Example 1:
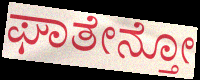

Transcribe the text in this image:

ಘಾತೇನ್ತೋ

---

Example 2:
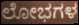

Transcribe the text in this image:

ಲೋಭಗಳ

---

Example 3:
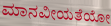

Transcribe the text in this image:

ಮಾನವೀಯತೆಯೋ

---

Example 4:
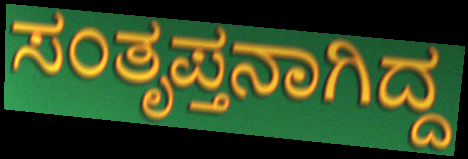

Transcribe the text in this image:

ಸಂತೃಪ್ತನಾಗಿದ್ದ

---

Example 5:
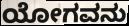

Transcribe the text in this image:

ಯೋಗವನು